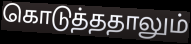
கொடுத்ததாலும்